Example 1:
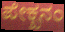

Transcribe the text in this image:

ಪೇಕ್ಖನಂ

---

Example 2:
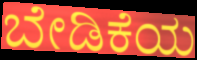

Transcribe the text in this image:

ಬೇಡಿಕೆಯ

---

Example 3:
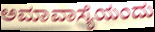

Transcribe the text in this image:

ಅಮಾವಾಸ್ಯೆಯಂದು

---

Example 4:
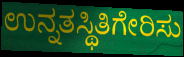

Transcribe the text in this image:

ಉನ್ನತಸ್ಥಿತಿಗೇರಿಸು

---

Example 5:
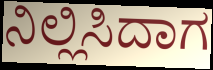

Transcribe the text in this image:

ನಿಲ್ಲಿಸಿದಾಗ